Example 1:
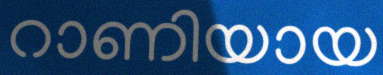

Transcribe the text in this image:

റാണിയായ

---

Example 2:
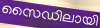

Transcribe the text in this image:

സൈഡിലായി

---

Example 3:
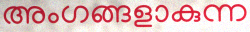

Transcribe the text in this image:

അംഗങ്ങളാകുന്ന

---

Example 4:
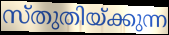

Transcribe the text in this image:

സ്തുതിയ്ക്കുന്ന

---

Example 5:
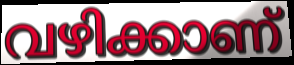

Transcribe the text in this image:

വഴിക്കാണ്